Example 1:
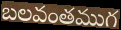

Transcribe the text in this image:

బలవంతముగ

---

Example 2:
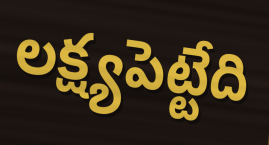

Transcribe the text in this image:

లక్ష్యపెట్టేది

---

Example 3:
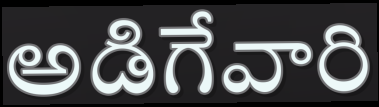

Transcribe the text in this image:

అడిగేవారి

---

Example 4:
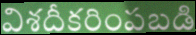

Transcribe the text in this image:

విశదీకరింపబడి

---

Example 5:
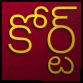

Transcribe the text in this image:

కోర్ట్